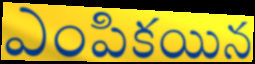
ఎంపికయిన